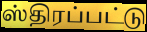
ஸ்திரப்பட்டு